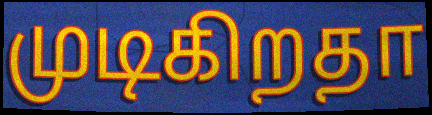
முடிகிறதா